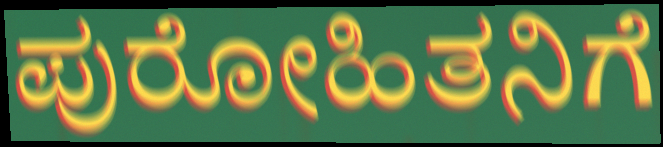
ಪುರೋಹಿತನಿಗೆ